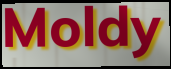
Moldy